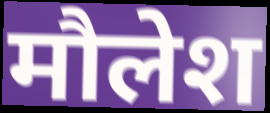
मौलेश